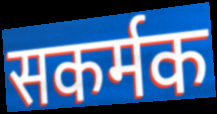
सकर्मक